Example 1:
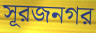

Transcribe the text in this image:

সূরজনগর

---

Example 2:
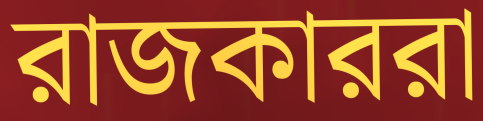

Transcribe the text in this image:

রাজকাররা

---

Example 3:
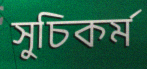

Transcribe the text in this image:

সুচিকর্ম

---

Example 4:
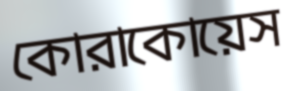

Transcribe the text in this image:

কোরাকোয়েস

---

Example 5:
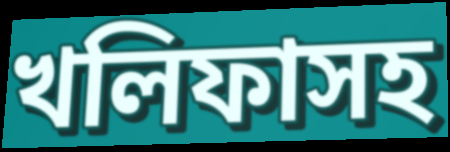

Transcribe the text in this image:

খলিফাসহ